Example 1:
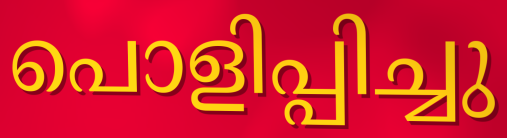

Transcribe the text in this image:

പൊളിപ്പിച്ചു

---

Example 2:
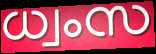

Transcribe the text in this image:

ധ്വംസ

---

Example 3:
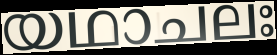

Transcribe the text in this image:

യഥാചലഃ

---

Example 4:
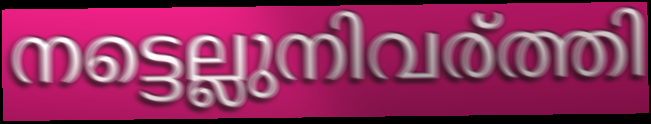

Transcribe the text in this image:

നട്ടെല്ലുനിവര്ത്തി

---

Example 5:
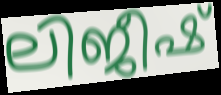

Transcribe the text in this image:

ലിജീഷ്